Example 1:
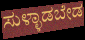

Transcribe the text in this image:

ಸುಳ್ಳಾಡಬೇಡ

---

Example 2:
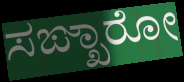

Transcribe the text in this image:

ಸಙ್ಖಾರೋ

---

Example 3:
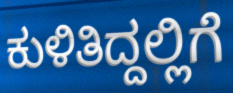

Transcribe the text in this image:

ಕುಳಿತಿದ್ದಲ್ಲಿಗೆ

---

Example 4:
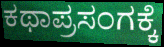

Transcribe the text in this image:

ಕಥಾಪ್ರಸಂಗಕ್ಕೆ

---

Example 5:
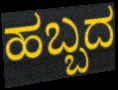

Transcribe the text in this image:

ಹಬ್ಬದ